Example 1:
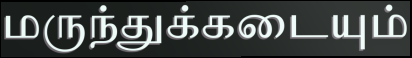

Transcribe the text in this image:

மருந்துக்கடையும்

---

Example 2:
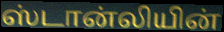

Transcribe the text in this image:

ஸ்டான்லியின்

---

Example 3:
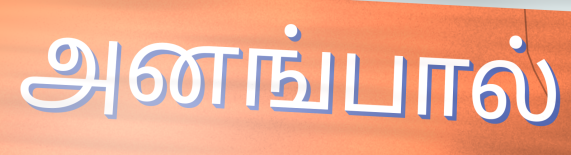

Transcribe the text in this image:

அனங்பால்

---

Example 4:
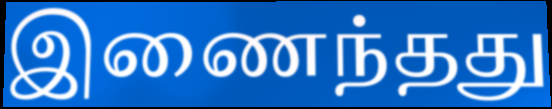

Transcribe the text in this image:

இணைந்தது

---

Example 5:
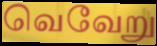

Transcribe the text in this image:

வெவேறு